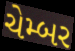
ચેમ્બર